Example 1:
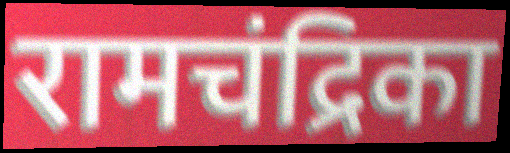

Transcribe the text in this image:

रामचंद्रिका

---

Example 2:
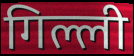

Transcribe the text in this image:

गिल्ली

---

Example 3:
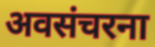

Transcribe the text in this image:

अवसंचरना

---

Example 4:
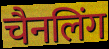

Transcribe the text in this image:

चैनलिंग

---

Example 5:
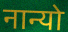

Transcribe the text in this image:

नान्यो